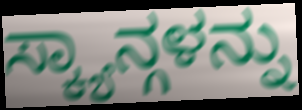
ಸ್ಕ್ಯಾನ್ಗಳನ್ನು